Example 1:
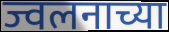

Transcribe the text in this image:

ज्वलनाच्या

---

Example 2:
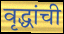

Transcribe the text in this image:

वृद्धांची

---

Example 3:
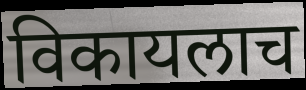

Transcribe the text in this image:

विकायलाच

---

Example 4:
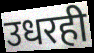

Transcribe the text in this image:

उधरही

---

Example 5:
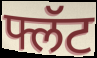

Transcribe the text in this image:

फ्लॅट